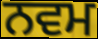
ਨਵਮ